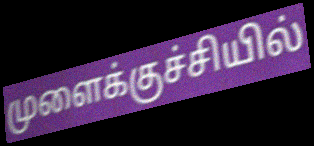
முளைக்குச்சியில்